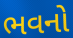
ભવનો